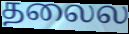
தலைல